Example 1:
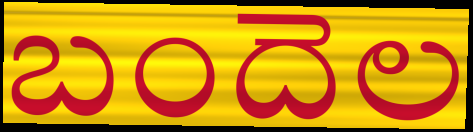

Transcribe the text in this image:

బందెల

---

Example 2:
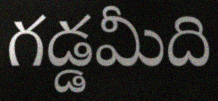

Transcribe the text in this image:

గడ్డమీది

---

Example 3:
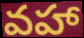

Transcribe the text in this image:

వహా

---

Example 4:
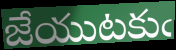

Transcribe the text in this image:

జేయుటకుఁ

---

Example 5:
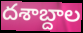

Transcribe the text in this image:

దశాబ్దాల